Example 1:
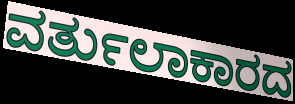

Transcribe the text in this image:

ವರ್ತುಲಾಕಾರದ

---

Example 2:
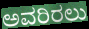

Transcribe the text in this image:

ಅವರಿರಲು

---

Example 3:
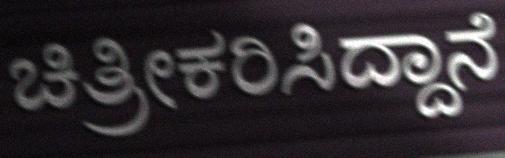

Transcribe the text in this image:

ಚಿತ್ರೀಕರಿಸಿದ್ದಾನೆ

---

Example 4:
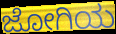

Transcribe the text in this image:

ಜೋಗಿಯ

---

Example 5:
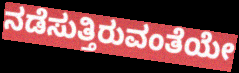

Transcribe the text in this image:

ನಡೆಸುತ್ತಿರುವಂತೆಯೇ